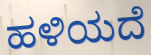
ಹಳಿಯದೆ